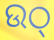
ଉଠ୍